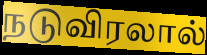
நடுவிரலால்